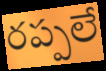
రప్పలే